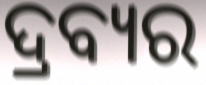
ଦ୍ରବ୍ୟର